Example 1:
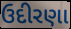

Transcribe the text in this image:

ઉદીરણા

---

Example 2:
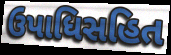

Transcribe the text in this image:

ઉપાધિસહિત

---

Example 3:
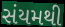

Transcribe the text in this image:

સંયમથી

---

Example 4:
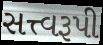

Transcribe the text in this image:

સત્ત્વરૂપી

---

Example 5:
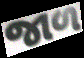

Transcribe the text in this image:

જાળ